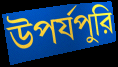
উপর্যপুরি